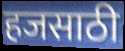
हजसाठी